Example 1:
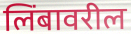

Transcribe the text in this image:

लिंबावरील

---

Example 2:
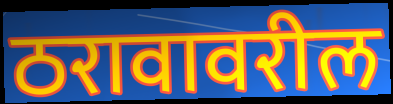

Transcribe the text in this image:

ठरावावरील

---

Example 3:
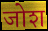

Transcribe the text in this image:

जोश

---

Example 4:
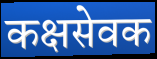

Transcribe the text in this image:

कक्षसेवक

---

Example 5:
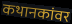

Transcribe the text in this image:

कथानकांवर